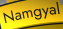
Namgyal